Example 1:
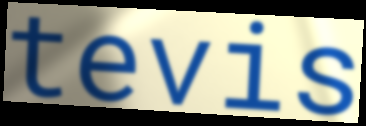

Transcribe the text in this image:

tevis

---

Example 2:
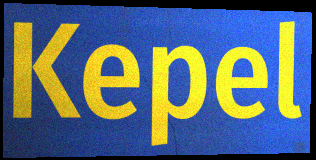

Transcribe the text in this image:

Kepel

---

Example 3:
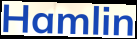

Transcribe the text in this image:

Hamlin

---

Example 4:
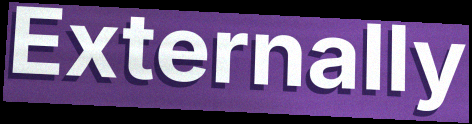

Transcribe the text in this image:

Externally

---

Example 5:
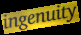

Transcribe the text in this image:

ingenuity